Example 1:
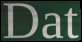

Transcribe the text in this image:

Dat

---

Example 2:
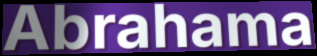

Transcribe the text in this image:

Abrahama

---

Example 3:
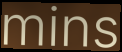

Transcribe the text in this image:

mins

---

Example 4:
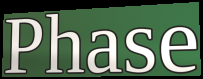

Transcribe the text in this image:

Phase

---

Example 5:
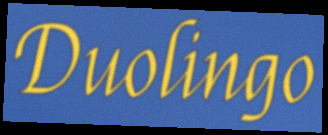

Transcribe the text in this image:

Duolingo